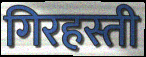
गिरहस्ती